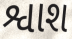
શ્વાશ